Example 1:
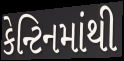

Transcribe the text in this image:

કેન્ટિનમાંથી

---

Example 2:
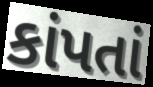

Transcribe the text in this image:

કાંપતાં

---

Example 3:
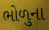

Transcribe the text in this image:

ભોળુના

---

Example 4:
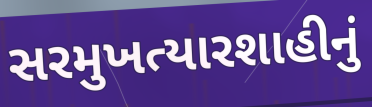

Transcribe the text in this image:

સરમુખત્યારશાહીનું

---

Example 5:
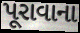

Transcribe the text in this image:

પૂરાવાના